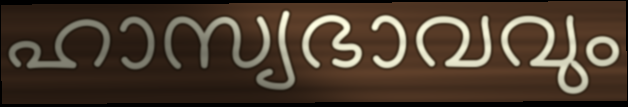
ഹാസ്യഭാവവും